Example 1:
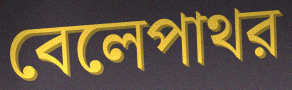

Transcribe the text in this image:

বেলেপাথর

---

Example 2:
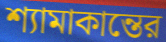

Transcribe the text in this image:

শ্যামাকান্তের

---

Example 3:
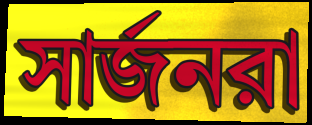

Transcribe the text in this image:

সার্জনরা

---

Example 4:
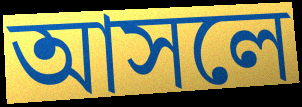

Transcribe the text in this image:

আসলে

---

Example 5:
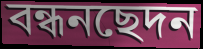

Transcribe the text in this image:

বন্ধনছেদন